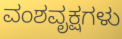
ವಂಶವೃಕ್ಷಗಳು